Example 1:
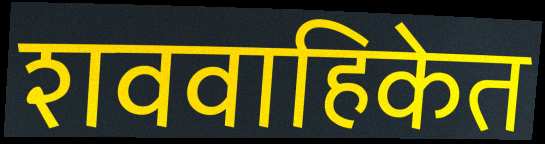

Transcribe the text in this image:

शववाहिकेत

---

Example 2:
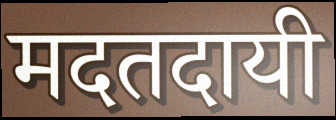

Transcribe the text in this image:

मदतदायी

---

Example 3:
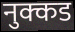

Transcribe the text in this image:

नुक्कड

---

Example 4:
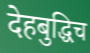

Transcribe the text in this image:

देहबुद्धिच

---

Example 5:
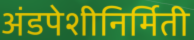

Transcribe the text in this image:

अंडपेशीनिर्मिती